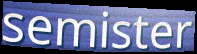
semister